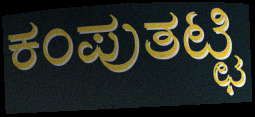
ಕಂಪುತಟ್ಟಿ